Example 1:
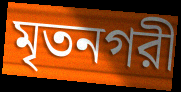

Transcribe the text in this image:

মৃতনগরী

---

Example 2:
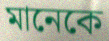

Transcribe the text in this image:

মানেকে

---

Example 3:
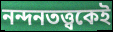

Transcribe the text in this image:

নন্দনতত্ত্বকেই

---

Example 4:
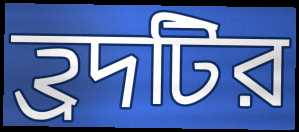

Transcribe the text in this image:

হ্রদটির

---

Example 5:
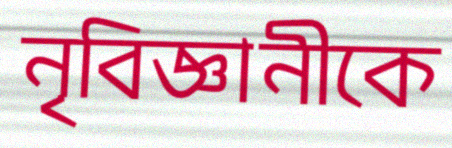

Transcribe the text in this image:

নৃবিজ্ঞানীকে